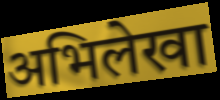
अभिलेखा